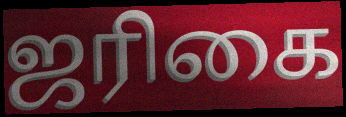
ஜரிகை